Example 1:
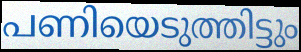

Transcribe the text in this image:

പണിയെടുത്തിട്ടും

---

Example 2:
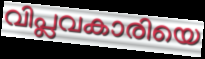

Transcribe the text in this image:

വിപ്ലവകാരിയെ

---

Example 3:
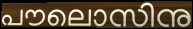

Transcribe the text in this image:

പൗലൊസിനു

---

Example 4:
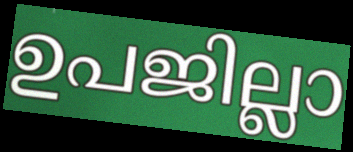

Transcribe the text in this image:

ഉപജില്ലാ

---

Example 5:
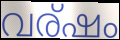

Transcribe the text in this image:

വര്ഷം